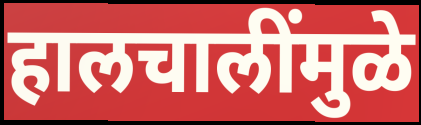
हालचालींमुळे